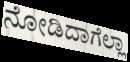
ನೋಡಿದಾಗೆಲ್ಲಾ